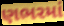
ણભરમાં